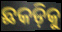
ଛକଡ଼ିକୁ